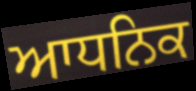
ਆਧਨਿਕ